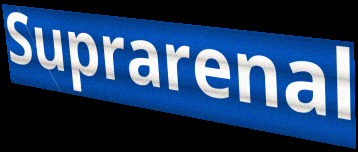
Suprarenal